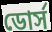
ডোর্স